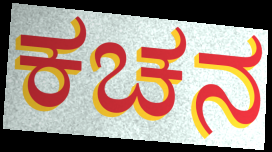
ಕಚನ